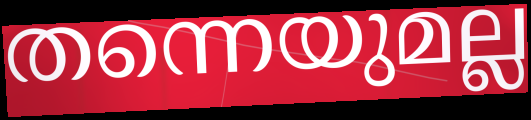
തന്നെയുമല്ല